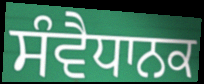
ਸੰਵੈਧਾਨਕ